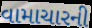
વામાચારની